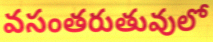
వసంతరుతువులో